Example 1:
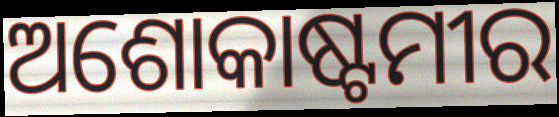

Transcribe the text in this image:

ଅଶୋକାଷ୍ଟମୀର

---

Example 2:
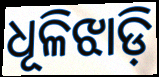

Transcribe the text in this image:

ଧୂଳିଝାଡ଼ି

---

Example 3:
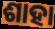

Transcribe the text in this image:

ଶାହା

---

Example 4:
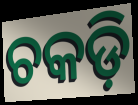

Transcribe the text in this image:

ଚକଡ଼ି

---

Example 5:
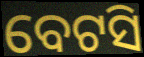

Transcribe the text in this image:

ବେଟସି